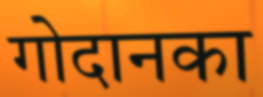
गोदानका